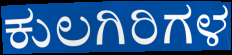
ಕುಲಗಿರಿಗಳ